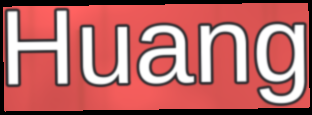
Huang